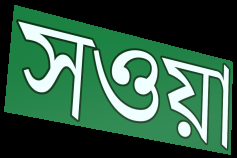
সওয়া